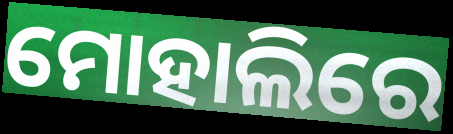
ମୋହାଲିରେ